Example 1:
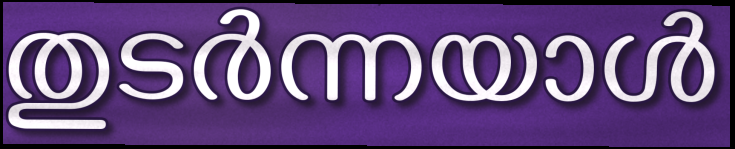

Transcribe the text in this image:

തുടർന്നയാൾ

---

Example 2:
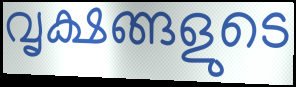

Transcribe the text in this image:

വൃക്ഷങ്ങളുടെ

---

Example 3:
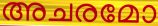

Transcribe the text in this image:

അചരമോ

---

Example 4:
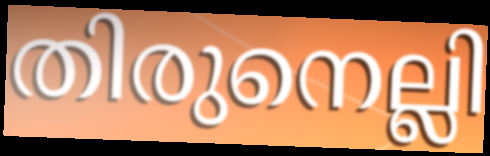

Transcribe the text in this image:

തിരുനെല്ലി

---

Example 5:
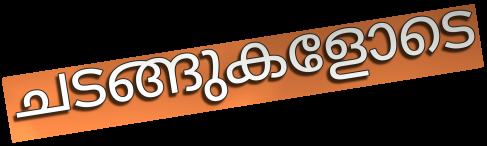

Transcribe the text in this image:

ചടങ്ങുകളോടെ